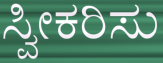
ಸ್ವೀಕರಿಸು